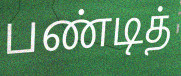
பண்டித்